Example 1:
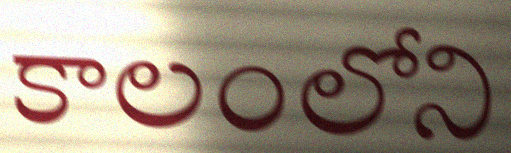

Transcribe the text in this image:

కాలంలోని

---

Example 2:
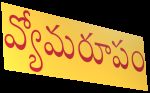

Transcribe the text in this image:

వ్యోమరూపం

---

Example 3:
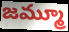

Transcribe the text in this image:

జమ్మూ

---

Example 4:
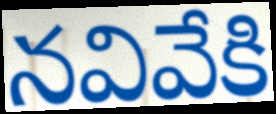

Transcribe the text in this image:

నవివేకి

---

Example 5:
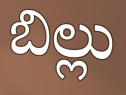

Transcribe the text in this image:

బిల్లు